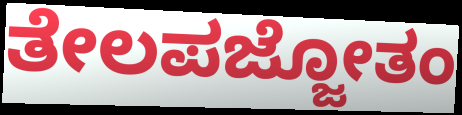
ತೇಲಪಜ್ಜೋತಂ